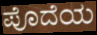
ಪೊದೆಯ